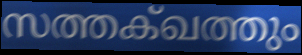
സത്തക്ഖത്തും